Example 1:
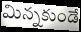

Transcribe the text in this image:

మిన్నకుండే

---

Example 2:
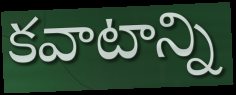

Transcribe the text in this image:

కవాటాన్ని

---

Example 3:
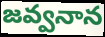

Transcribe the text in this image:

జవ్వనాన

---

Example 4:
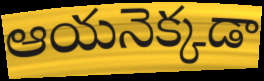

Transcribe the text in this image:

ఆయనెక్కడా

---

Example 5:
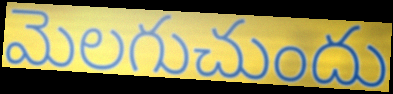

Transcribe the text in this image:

మెలగుచుందు